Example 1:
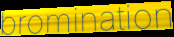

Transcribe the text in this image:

bromination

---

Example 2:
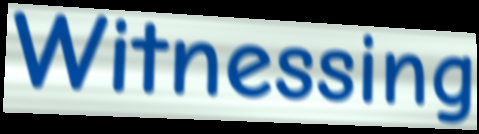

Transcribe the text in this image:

Witnessing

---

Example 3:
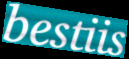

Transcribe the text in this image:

bestiis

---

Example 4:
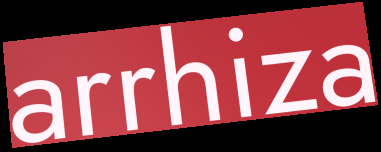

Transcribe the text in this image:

arrhiza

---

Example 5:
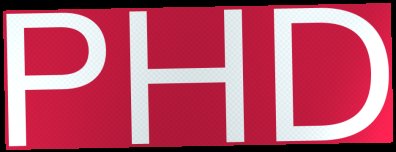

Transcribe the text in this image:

PHD